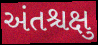
અંતશ્ચક્ષુ